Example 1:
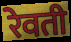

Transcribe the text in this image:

रेवती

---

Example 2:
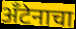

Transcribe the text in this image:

अँटेनाचा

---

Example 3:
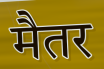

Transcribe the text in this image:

मैतर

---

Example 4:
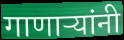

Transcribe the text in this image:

गाणाऱ्यांनी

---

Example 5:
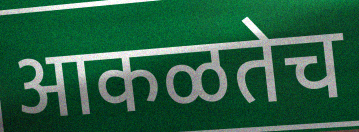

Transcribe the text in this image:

आकळतेच